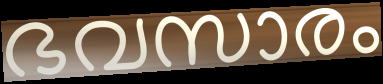
ഭവസാരം